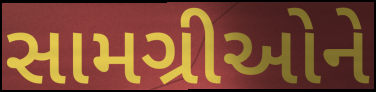
સામગ્રીઓને